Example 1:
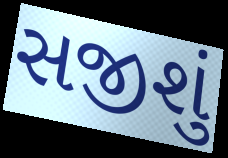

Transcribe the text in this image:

સજીશું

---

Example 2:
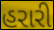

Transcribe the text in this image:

હરારી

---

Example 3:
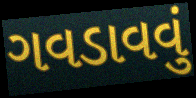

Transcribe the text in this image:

ગવડાવવું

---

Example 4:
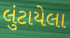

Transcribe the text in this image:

લુંટાયેલા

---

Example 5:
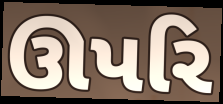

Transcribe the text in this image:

ઊપરિ